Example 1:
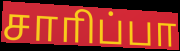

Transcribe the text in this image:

சாரிப்பா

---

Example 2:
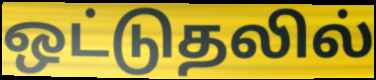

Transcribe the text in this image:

ஒட்டுதலில்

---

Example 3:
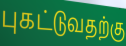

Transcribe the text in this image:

புகட்டுவதற்கு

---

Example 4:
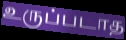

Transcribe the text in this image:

உருப்படாத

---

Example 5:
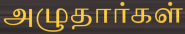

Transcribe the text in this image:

அழுதார்கள்